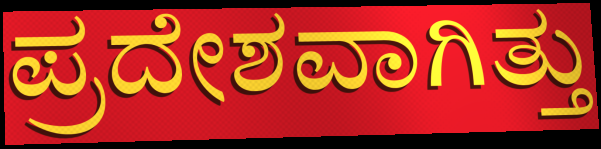
ಪ್ರದೇಶವಾಗಿತ್ತು